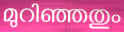
മുറിഞ്ഞതും